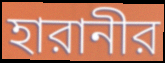
হারানীর